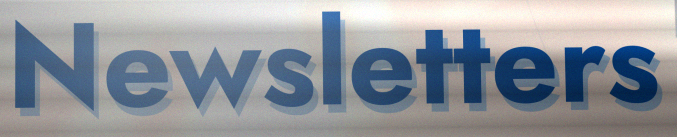
Newsletters